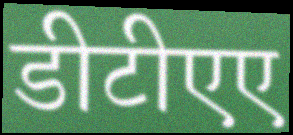
डीटीएए